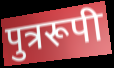
पुत्ररूपी